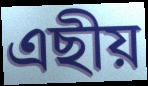
এছীয়